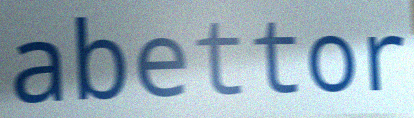
abettor